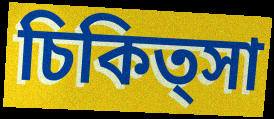
চিকিত্সা